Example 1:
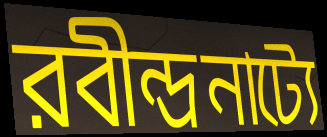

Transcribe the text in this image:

রবীন্দ্রনাট্যে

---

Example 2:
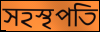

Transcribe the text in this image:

সহস্থপতি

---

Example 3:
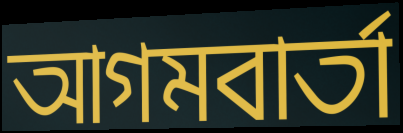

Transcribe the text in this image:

আগমবার্তা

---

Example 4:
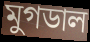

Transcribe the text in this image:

মুগডাল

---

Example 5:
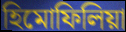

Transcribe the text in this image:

হিমোফিলিয়া